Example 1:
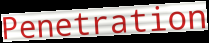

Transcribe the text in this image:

Penetration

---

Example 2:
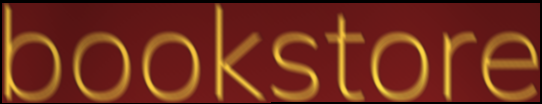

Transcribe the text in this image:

bookstore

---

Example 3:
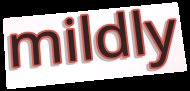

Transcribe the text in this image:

mildly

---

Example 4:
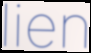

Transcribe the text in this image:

lien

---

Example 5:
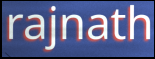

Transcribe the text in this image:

rajnath